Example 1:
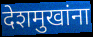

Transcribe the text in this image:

देशमुखांना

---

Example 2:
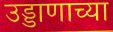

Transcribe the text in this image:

उड्डाणाच्या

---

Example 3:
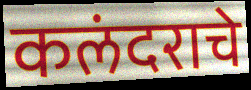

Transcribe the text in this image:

कलंदराचे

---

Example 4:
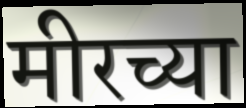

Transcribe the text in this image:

मीरच्या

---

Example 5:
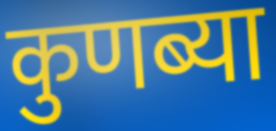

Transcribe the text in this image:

कुणब्या